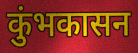
कुंभकासन